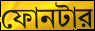
ফোনটার